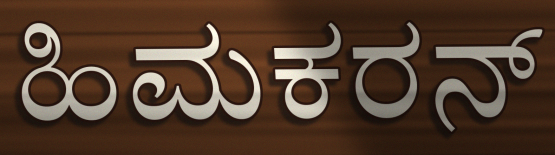
ಹಿಮಕರನ್